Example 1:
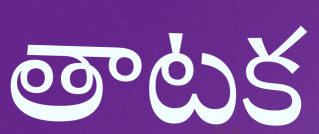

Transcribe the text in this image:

తాటక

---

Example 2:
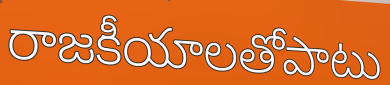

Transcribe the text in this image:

రాజకీయాలతోపాటు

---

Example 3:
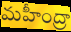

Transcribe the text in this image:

మహీంద్రా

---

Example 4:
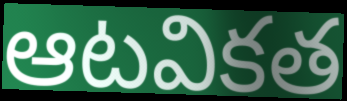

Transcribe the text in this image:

ఆటవికత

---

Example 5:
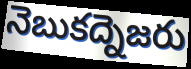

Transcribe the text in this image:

నెబుకద్నెజరు